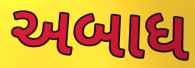
અબાધ